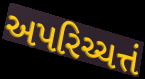
અપરિચ્ચત્તં